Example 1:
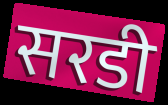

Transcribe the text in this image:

सरडी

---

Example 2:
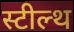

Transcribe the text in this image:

स्टील्थ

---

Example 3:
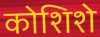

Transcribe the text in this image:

कोशिशे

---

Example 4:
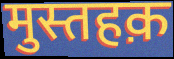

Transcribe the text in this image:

मुस्तहक़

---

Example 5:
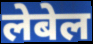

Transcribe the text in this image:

लेबेल